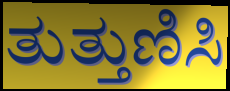
ತುತ್ತುಣಿಸಿ